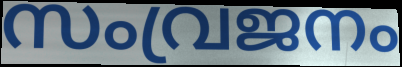
സംവ്രജനം